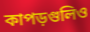
কাপড়গুলিও